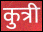
कुत्री